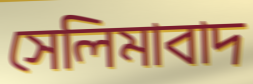
সেলিমাবাদ